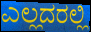
ಎಲ್ಲದರಲ್ಲಿ